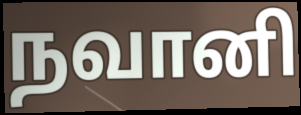
நவானி